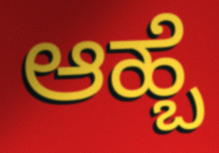
ಆಹ್ಬೆ